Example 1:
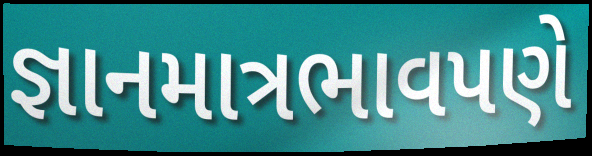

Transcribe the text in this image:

જ્ઞાનમાત્રભાવપણે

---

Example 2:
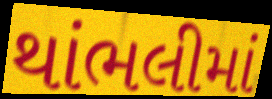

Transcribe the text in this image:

થાંભલીમાં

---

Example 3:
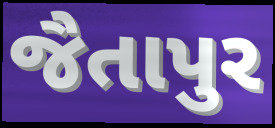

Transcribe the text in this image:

જૈતાપુર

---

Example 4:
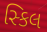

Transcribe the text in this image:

સ્કિલ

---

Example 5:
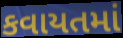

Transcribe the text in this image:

કવાયતમાં